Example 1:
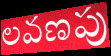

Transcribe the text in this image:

లవణపు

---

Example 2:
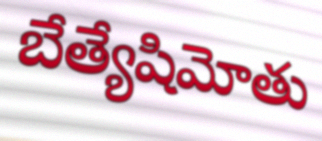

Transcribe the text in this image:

బేత్యేషిమోతు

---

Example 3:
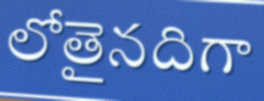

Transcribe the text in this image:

లోతైనదిగా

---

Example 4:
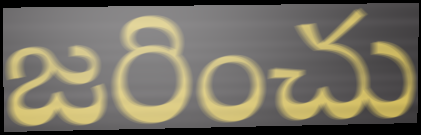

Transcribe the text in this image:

జరించు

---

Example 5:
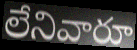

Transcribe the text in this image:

లేనివారూ